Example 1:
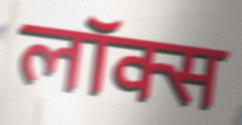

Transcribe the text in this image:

लॉक्स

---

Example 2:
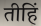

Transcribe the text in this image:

तीहिं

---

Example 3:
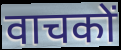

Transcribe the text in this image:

वाचकों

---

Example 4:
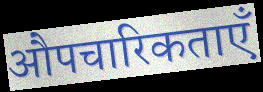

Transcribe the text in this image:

औपचारिकताएँ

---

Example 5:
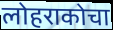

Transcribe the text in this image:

लोहराकोचा